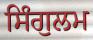
ਸਿੰਗੁਲਮ